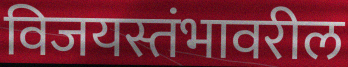
विजयस्तंभावरील